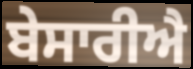
ਬੇਸਾਰੀਐ